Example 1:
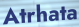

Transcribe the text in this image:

Atrhata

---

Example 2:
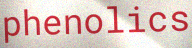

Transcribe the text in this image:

phenolics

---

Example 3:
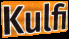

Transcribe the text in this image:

Kulfi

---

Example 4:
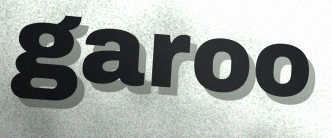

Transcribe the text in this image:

garoo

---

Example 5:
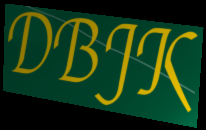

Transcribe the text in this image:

DBJK